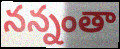
నన్నంతా